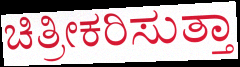
ಚಿತ್ರೀಕರಿಸುತ್ತಾ